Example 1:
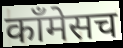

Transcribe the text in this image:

कॉंमेसच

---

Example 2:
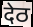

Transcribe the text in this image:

देठ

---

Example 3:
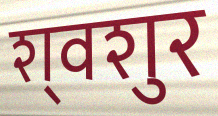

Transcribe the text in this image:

श्वशुर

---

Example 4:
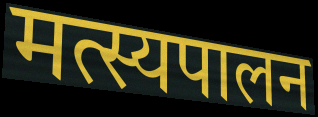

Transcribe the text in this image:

मत्स्यपालन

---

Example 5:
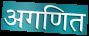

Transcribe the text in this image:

अगणित